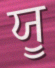
ਯੂ